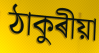
ঠাকুৰীয়া